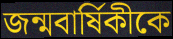
জন্মবার্ষিকীকে